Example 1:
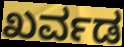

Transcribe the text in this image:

ಖರ್ವಡ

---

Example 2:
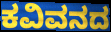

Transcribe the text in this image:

ಕವಿವನದ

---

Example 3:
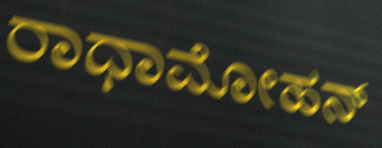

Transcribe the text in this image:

ರಾಧಾಮೋಹನ್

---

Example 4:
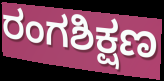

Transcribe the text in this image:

ರಂಗಶಿಕ್ಷಣ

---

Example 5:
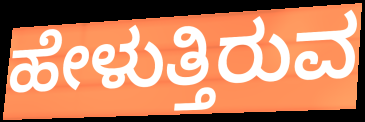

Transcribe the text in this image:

ಹೇಳುತ್ತಿರುವ